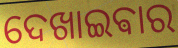
ଦେଖାଇଵାର